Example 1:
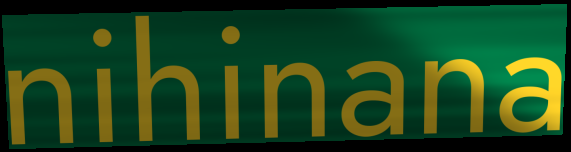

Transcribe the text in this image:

nihinana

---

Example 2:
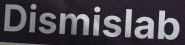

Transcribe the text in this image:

Dismislab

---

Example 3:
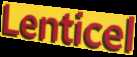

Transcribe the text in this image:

Lenticel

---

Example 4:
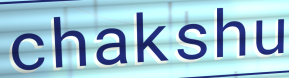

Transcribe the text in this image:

chakshu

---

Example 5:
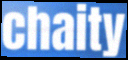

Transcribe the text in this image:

chaity